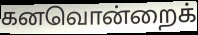
கனவொன்றைக்